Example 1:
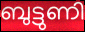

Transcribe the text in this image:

ബുട്ടുണി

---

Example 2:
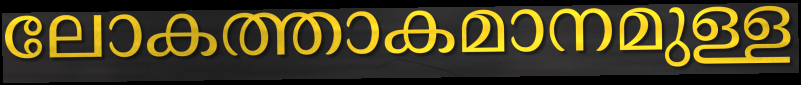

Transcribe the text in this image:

ലോകത്താകമാനമുള്ള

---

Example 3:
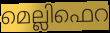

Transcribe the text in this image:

മെല്ലിഫെറ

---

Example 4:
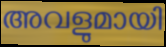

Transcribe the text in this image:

അവളുമായി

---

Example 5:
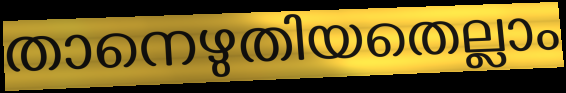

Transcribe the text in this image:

താനെഴുതിയതെല്ലാം